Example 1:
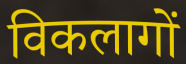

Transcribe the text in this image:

विकलागों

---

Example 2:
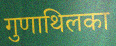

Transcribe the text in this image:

गुणाथिलका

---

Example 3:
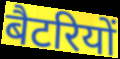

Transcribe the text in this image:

बैटरियों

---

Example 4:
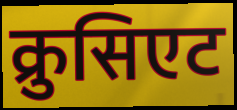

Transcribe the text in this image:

क्रुसिएट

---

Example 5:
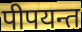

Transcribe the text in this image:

पीपयन्त